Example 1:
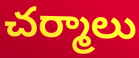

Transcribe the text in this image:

చర్మాలు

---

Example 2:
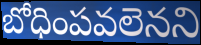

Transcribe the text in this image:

బోధింపవలెనని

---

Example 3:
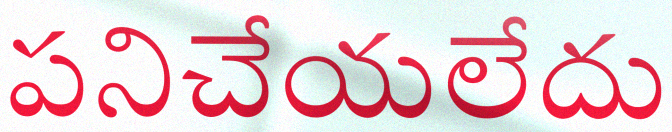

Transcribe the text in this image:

పనిచేయలేదు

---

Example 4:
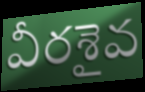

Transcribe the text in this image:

వీరశైవ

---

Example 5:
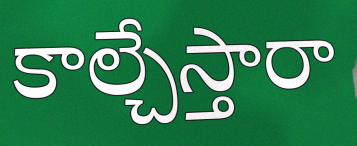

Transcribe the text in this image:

కాల్చేస్తారా